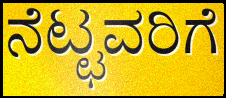
ನೆಟ್ಟವರಿಗೆ